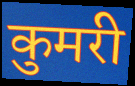
कुमरी